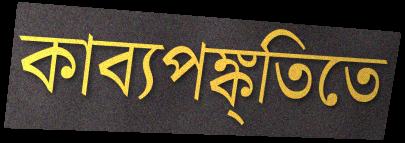
কাব্যপঙ্ক্তিতে